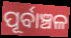
ପୂର୍ବାଞ୍ଚଳ